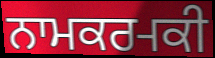
ਨਾਮਕਰ੍ਮਕੀ